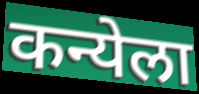
कन्येला